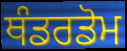
ਥੰਡਰਡੋਮ